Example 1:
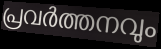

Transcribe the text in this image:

പ്രവർത്തനവും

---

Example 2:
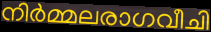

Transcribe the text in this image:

നിർമ്മലരാഗവീചി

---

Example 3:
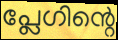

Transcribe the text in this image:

പ്ലേഗിന്റെ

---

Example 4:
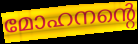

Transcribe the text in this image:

മോഹനന്റെ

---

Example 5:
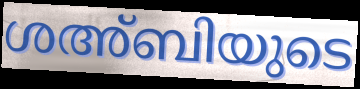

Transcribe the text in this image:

ശഅ്ബിയുടെ